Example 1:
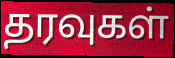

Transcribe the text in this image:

தரவுகள்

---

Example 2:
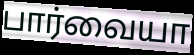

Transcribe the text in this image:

பார்வையா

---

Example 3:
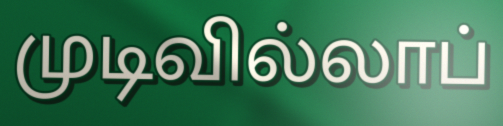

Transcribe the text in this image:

முடிவில்லாப்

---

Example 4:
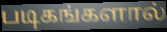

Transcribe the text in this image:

படிகங்களால்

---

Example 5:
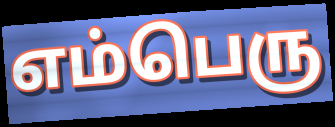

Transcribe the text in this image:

எம்பெரு